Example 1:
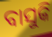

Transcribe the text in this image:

ବାସୁକି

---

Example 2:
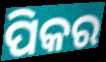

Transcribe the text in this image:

ପିକର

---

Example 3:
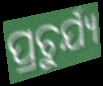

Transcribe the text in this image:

ପ୍ରଚୁର୍ଯ୍ୟ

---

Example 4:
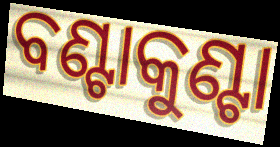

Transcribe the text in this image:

ବଣ୍ଟାକୁଣ୍ଟା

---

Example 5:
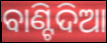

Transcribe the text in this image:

ବାଣ୍ଟିଦିଆ